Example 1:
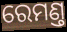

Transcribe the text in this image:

ରେମଣ୍ତ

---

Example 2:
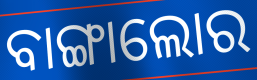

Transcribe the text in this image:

ବାଙ୍ଗାଲୋର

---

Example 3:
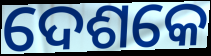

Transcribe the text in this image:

ଦେଶକେ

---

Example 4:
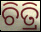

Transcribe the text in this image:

ଚିତ୍ରି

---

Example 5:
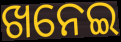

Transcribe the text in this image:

ଖନେଇ